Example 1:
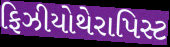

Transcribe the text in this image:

ફિઝીયોથેરાપિસ્ટ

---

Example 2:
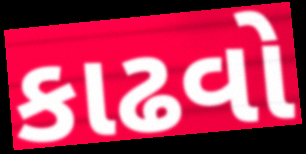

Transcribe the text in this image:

કાઢવો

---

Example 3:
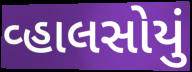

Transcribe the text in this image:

વ્હાલસોયું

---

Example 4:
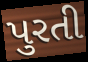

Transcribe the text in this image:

પુરતી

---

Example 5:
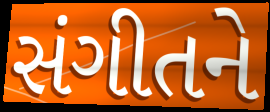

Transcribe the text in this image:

સંગીતને